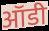
ऑडी